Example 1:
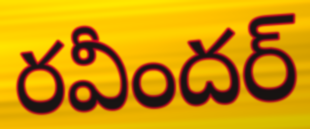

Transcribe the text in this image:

రవీందర్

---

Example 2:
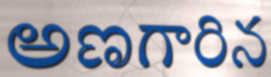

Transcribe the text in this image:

అణగారిన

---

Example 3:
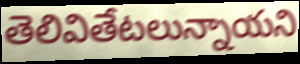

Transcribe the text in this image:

తెలివితేటలున్నాయని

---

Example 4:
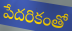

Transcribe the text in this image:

పేదరికంతో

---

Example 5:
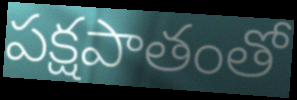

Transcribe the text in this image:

పక్షపాతంతో